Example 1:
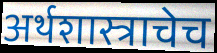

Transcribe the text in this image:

अर्थशास्त्राचेच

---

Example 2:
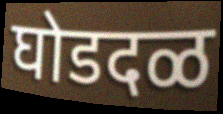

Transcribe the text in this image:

घोडदळ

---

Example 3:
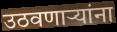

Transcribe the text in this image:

उठवणाऱ्यांना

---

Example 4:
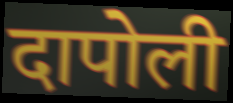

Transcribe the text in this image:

दापोली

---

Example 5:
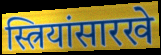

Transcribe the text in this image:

स्त्रियांसारखे